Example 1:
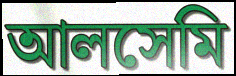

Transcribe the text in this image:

আলসেমি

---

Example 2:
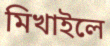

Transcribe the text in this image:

মিখাইলে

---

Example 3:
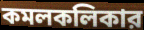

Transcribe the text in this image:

কমলকলিকার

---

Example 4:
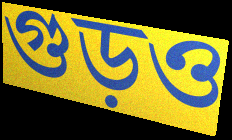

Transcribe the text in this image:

গুড়ও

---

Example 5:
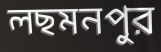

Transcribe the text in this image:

লছমনপুর